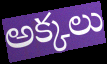
అక్కలు